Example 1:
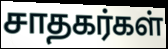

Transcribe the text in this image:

சாதகர்கள்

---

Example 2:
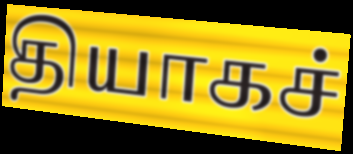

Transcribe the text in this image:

தியாகச்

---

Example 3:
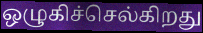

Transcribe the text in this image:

ஒழுகிச்செல்கிறது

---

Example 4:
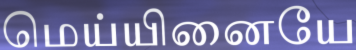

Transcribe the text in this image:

மெய்யினையே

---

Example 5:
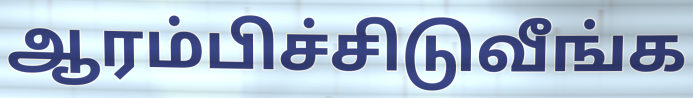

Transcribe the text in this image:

ஆரம்பிச்சிடுவீங்க